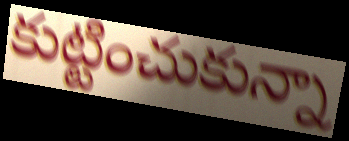
కుట్టించుకున్నా